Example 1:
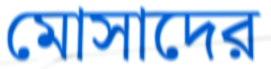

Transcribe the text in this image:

মোসাদের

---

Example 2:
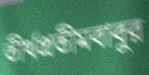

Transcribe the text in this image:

তীর্থপ্রতীমবাবুর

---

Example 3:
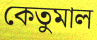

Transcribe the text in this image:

কেতুমাল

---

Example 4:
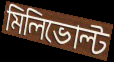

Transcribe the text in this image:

মিলিভোল্ট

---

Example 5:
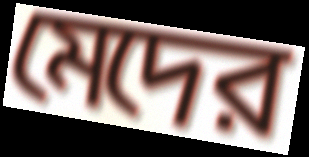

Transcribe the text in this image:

মেদের